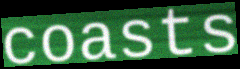
coasts